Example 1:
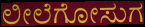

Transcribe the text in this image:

ಲೀಲೆಗೋಸುಗ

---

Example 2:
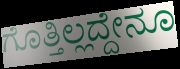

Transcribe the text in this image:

ಗೊತ್ತಿಲ್ಲದ್ದೇನೂ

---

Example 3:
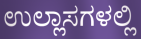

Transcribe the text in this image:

ಉಲ್ಲಾಸಗಳಲ್ಲಿ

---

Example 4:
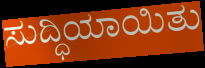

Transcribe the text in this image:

ಸುದ್ಧಿಯಾಯಿತು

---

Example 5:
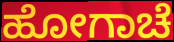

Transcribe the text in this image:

ಹೋಗಾಚೆ